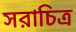
সরাচিত্র